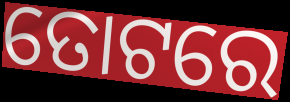
ତୋଟରେ